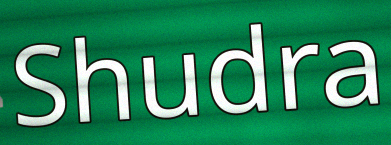
Shudra